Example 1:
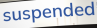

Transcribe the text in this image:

suspended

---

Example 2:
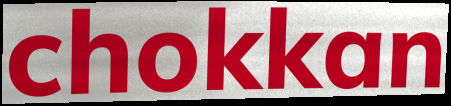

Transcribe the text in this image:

chokkan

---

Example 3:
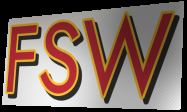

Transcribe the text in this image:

FSW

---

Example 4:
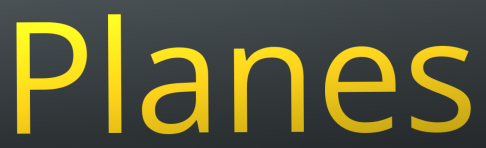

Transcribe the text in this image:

Planes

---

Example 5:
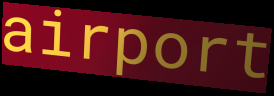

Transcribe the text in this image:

airport